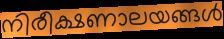
നിരീക്ഷണാലയങ്ങൾ